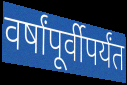
वर्षांपूर्वीपर्यंत